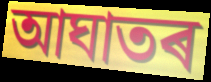
আঘাতৰ